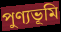
পুণ্যভূমি